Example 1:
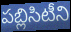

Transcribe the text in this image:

పబ్లిసిటీని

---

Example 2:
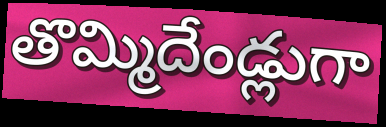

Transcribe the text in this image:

తొమ్మిదేండ్లుగా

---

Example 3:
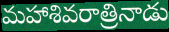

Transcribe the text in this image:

మహాశివరాత్రినాడు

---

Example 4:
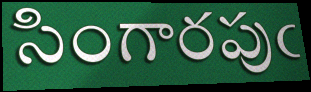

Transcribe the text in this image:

సింగారపుఁ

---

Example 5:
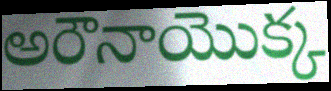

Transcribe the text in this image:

అరౌనాయొక్క